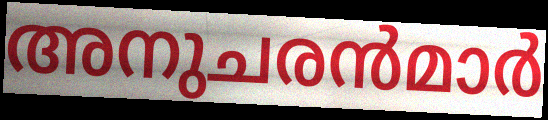
അനുചരൻമാർ